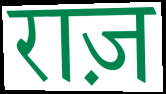
राज़